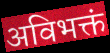
अविभक्तं